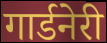
गार्डनेरी